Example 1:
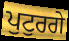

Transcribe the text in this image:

ਪੁਟੁਰਗੇ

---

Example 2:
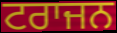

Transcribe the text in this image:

ਟਰਾਜਨ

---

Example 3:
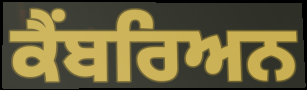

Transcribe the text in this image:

ਕੈਂਬਰਿਅਨ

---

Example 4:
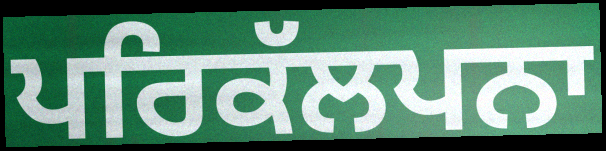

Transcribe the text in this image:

ਪਰਿਕੱਲਪਨਾ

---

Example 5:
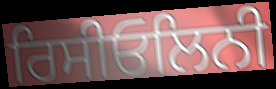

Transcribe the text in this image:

ਰਿਸੀਓਲਿਨੀ